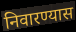
निवारण्यास